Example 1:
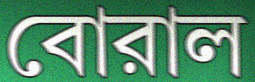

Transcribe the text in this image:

বোরাল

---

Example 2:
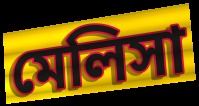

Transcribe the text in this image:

মেলিসা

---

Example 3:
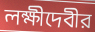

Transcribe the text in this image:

লক্ষীদেবীর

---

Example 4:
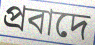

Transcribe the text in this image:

প্রবাদে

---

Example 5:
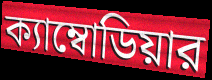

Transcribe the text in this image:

ক্যাম্বোডিয়ার